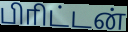
பிரிட்டன்